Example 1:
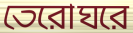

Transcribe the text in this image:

তেরোঘরে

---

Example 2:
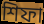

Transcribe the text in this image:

শিফা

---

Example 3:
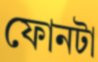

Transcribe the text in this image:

ফোনটা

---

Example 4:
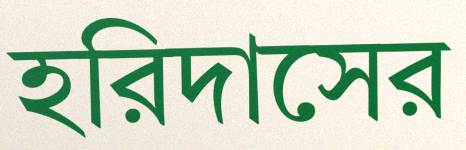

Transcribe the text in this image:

হরিদাসের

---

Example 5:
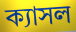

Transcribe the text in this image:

ক্যাসল